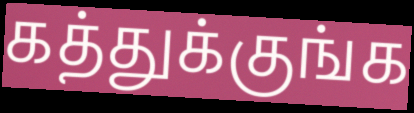
கத்துக்குங்க